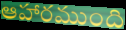
ఆహారముంది